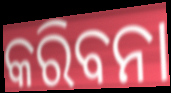
କରିବନା